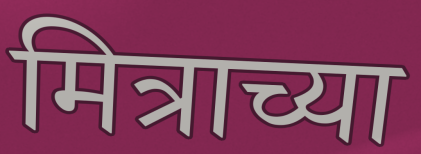
मित्राच्या